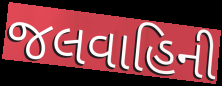
જલવાહિની